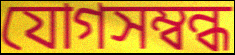
যোগসম্বন্ধ